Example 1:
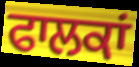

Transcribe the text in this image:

ਫਾਲਕਾਂ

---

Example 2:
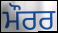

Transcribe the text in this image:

ਮੌਰਰ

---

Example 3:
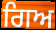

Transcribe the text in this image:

ਗਿਅ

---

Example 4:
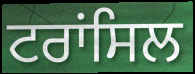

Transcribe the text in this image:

ਟਰਾਂਸਿਲ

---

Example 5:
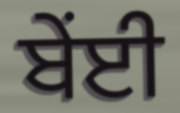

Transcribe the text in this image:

ਬੇਂਈ